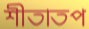
শীতাতপ